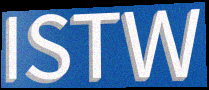
ISTW